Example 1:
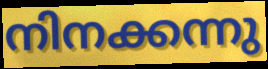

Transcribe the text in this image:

നിനക്കന്നു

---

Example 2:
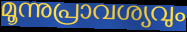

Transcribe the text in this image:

മൂന്നുപ്രാവശ്യവും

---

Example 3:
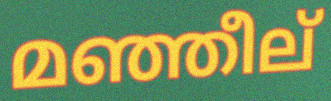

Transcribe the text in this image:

മഞ്ഞീല്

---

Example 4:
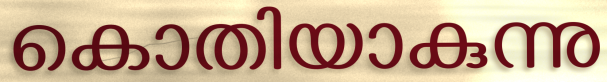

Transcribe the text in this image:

കൊതിയാകുന്നു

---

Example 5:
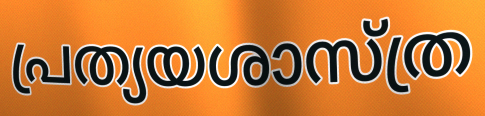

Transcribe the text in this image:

പ്രത്യയശാസ്ത്ര